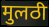
मुलठी